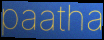
paatha